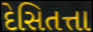
દેસિતત્તા